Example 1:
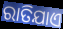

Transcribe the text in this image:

ରାତିଯାଏ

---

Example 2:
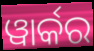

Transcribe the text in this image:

ୱାର୍କର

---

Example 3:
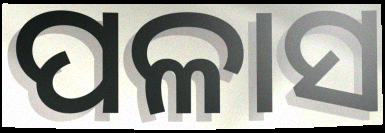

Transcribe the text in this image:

ପଳାସ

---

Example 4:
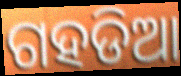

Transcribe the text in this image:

ଗହଡିଆ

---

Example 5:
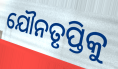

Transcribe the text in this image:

ଯୌନତୃପ୍ତିକୁ